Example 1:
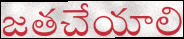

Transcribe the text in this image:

జతచేయాలి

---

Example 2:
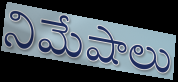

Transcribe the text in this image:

నిమేషాలు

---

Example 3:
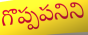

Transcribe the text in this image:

గొప్పపనిని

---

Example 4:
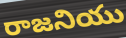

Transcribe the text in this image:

రాజనియు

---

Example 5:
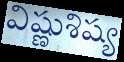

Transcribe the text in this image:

విష్ణుశిష్య